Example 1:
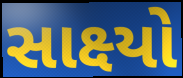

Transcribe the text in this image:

સાક્ષ્યો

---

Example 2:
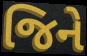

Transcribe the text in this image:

જિને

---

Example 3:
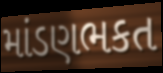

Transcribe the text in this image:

માંડણભકત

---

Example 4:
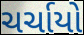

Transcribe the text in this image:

ચર્ચાયો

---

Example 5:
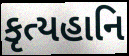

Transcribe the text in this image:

કૃત્યહાનિ